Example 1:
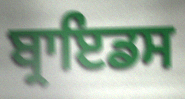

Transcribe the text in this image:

ਬ੍ਰਾਇਡਸ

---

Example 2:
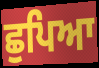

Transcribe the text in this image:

ਛੁਪਿਆ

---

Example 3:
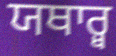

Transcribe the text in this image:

ਯਥਾਰ੍ਥ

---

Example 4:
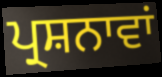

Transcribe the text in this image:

ਪ੍ਰਸ਼ਨਾਵਾਂ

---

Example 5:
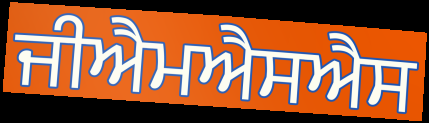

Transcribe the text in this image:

ਜੀਐਮਐਸਐਸ